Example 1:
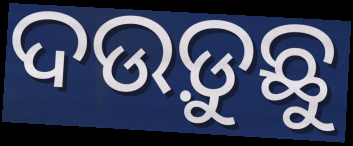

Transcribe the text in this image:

ଦଉଡ଼ୁଛୁ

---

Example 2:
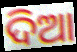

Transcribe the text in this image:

ଦିଆ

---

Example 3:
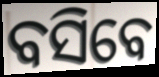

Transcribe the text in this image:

ବସିବେ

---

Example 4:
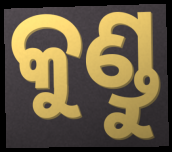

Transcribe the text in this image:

କୁଣ୍ଡୁ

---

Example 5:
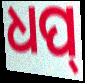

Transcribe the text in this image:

ଧପ୍